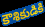
కౌశికుడికి